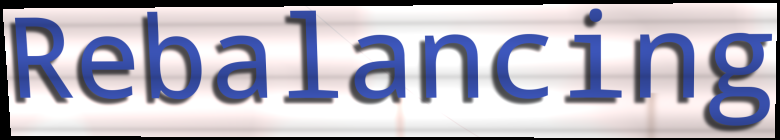
Rebalancing